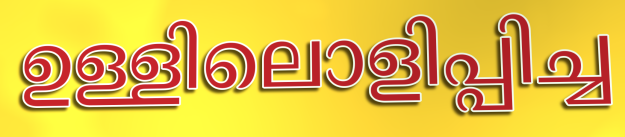
ഉള്ളിലൊളിപ്പിച്ച